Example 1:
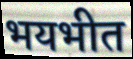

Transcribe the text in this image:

भयभीत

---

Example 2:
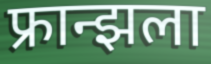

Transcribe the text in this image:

फ्रान्झला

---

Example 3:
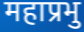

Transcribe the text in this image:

महाप्रभु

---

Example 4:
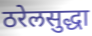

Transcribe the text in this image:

ठरेलसुद्धा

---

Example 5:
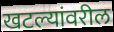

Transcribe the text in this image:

खटल्यांवरील